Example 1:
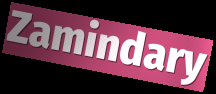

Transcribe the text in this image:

Zamindary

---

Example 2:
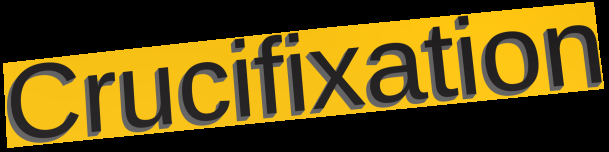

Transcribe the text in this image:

Crucifixation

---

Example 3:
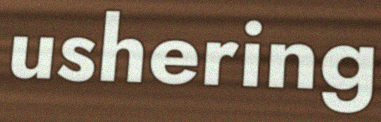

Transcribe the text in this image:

ushering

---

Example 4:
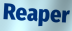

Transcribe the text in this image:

Reaper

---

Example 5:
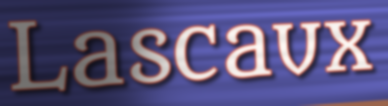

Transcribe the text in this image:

Lascaux